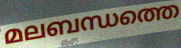
മലബന്ധത്തെ